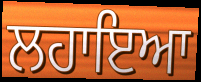
ਲਹਾਇਆ